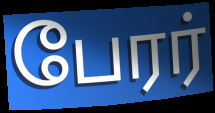
பேரர்